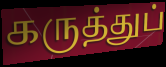
கருத்துப்